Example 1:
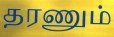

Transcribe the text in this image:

தரணும்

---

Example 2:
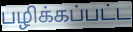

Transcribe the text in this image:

பழிக்கப்பட்ட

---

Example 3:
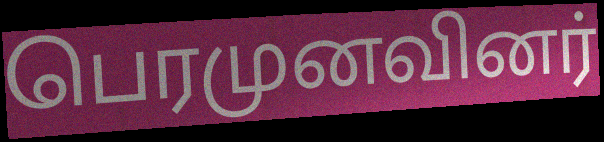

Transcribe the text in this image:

பெரமுனவினர்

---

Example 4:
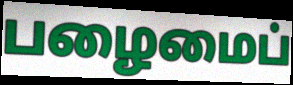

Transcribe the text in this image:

பழைமைப்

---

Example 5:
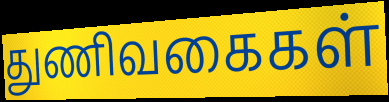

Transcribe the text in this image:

துணிவகைகள்